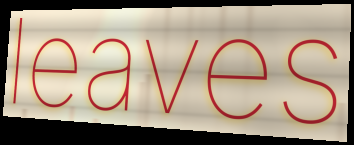
leaves